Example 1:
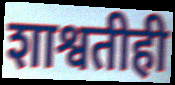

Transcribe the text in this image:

शाश्वतीही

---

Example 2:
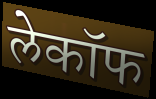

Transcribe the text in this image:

लेकॉफ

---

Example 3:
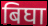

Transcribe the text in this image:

बिघा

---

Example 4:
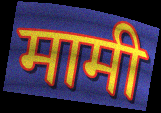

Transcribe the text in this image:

मामी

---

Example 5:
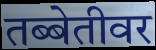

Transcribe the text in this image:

तब्बेतीवर